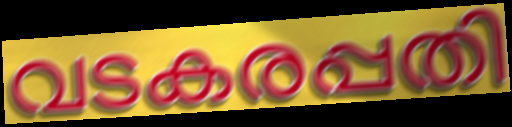
വടകരപ്പതി